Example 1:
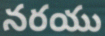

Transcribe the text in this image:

నరయు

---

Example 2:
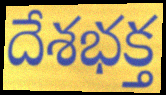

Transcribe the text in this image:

దేశభక్త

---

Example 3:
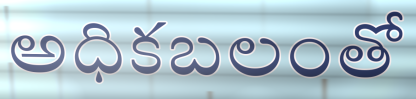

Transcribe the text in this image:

అధికబలంతో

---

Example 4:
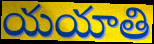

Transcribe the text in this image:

యయాతి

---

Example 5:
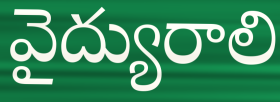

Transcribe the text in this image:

వైద్యురాలి